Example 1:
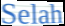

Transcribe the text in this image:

Selah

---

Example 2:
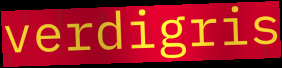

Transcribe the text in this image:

verdigris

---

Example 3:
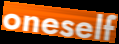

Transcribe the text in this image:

oneself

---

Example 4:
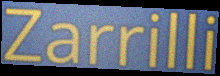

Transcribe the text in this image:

Zarrilli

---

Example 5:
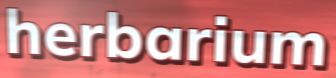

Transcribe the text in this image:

herbarium